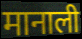
मानाली